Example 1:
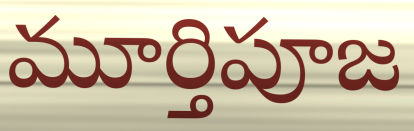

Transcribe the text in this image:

మూర్తిపూజ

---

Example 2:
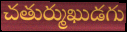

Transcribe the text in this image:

చతుర్ముఖుడగు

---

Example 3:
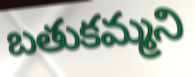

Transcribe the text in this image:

బతుకమ్మని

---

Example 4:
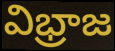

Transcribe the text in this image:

విభ్రాజ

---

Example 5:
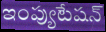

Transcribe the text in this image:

ఇంప్యుటేషన్